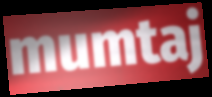
mumtaj